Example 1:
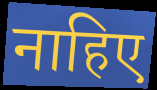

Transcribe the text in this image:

नाहिए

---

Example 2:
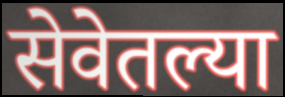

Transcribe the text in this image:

सेवेतल्या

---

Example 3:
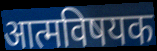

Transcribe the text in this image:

आत्मविषयक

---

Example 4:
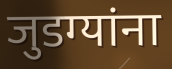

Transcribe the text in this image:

जुडग्यांना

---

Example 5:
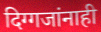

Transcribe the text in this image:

दिग्गजांनाही